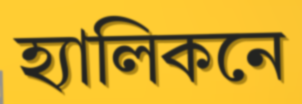
হ্যালিকনে